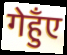
गेहुँए